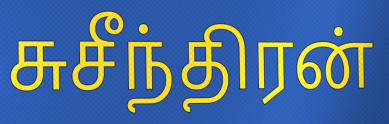
சுசீந்திரன்